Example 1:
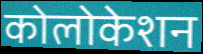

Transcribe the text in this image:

कोलोकेशन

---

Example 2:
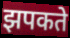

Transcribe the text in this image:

झपकते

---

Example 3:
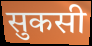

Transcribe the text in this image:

सुकसी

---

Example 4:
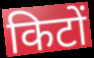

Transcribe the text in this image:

किटों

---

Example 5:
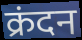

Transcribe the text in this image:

क्रंदन